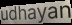
udhayan